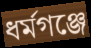
ধর্মগঞ্জে